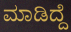
ಮಾಡಿದ್ದೆ